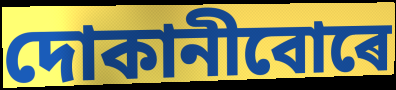
দোকানীবোৰে